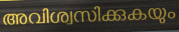
അവിശ്വസിക്കുകയും